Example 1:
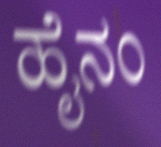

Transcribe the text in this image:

ಹೈನಂ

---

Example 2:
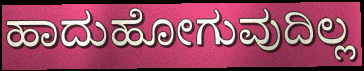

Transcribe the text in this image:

ಹಾದುಹೋಗುವುದಿಲ್ಲ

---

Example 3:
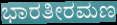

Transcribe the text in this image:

ಭಾರತೀರಮಣ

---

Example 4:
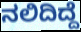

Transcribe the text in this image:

ನಲಿದಿದ್ದೆ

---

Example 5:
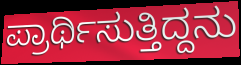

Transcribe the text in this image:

ಪ್ರಾರ್ಥಿಸುತ್ತಿದ್ದನು